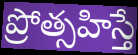
ప్రోత్సహిస్తే